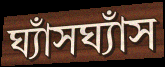
ঘ্যাঁসঘ্যাঁস